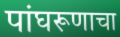
पांघरूणाचा